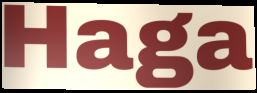
Haga